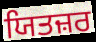
ਯਿਤਜ਼ਰ